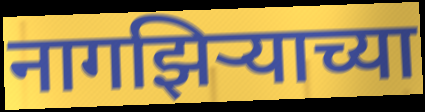
नागझिऱ्याच्या